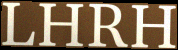
LHRH